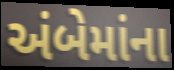
અંબેમાંના